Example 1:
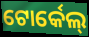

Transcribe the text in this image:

ଟୋର୍କେଲ୍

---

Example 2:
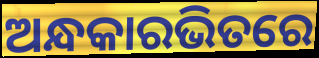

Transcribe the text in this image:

ଅନ୍ଧକାରଭିତରେ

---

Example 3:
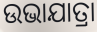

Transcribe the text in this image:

ଉଭାଯାତ୍ରା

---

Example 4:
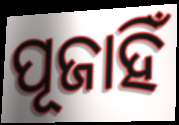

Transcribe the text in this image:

ପୂଜାହିଁ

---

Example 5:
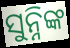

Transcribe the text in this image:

ସୁନ୍ନିଙ୍କ